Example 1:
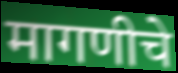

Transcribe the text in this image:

मागणीचे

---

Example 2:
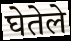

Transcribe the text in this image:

घेतेले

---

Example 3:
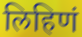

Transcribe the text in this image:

लिहिणं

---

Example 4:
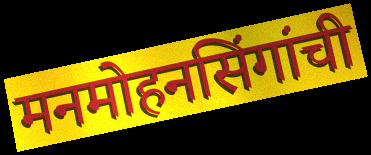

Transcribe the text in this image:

मनमोहनसिंगांची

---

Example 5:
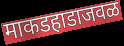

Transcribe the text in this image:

माकडहाडाजवळ